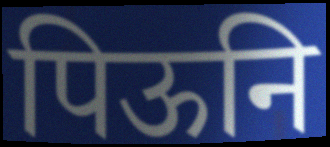
पिऊनि